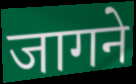
जागने